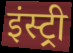
इंस्ट्री